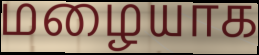
மழையாக